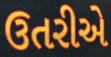
ઉતરીએ